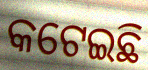
କଟେଇଛି